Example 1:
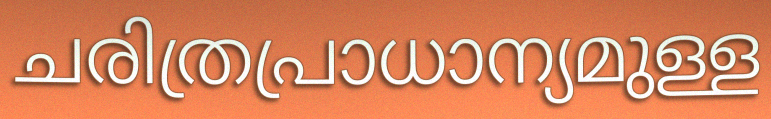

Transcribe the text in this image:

ചരിത്രപ്രാധാന്യമുള്ള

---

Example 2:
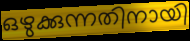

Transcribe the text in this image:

ഒഴുക്കുന്നതിനായി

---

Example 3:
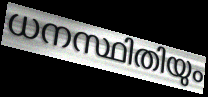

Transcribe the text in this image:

ധനസ്ഥിതിയും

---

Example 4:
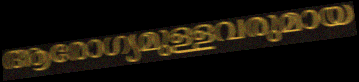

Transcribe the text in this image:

ആരോഗ്യമുള്ളവരുമായ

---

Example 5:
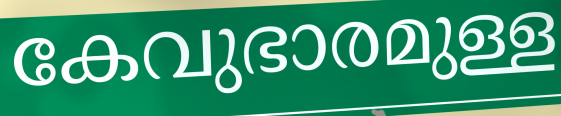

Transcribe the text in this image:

കേവുഭാരമുള്ള